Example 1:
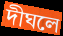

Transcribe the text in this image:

দীঘলে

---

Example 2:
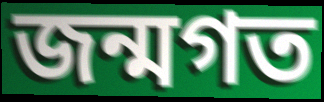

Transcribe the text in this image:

জন্মগত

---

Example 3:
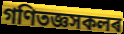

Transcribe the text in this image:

গণিতজ্ঞসকলৰ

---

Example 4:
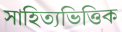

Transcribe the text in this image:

সাহিত্যভিত্তিক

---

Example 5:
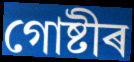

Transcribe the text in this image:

গোষ্টীৰ